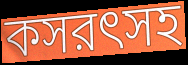
কসরৎসহ